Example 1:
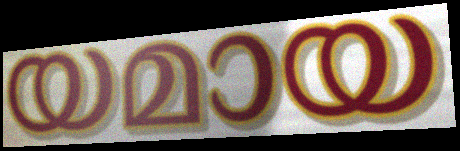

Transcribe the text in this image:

യമായ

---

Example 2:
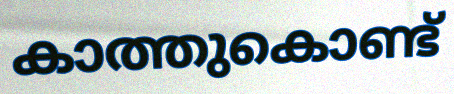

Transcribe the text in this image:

കാത്തുകൊണ്ട്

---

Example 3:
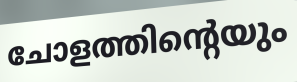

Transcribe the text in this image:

ചോളത്തിന്റെയും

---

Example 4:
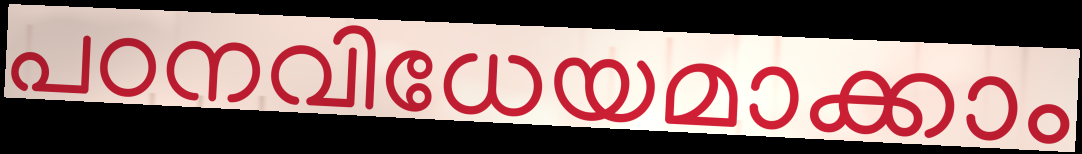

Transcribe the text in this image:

പഠനവിധേയമാക്കാം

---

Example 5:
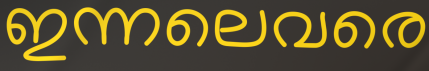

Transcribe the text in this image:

ഇന്നലെവരെ